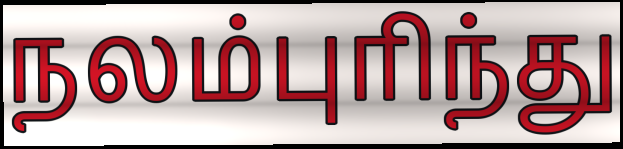
நலம்புரிந்து